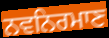
ਨਵਨਿਰਮਾਣ